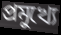
প্ৰমুখ্যে